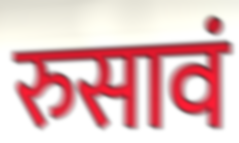
रुसावं